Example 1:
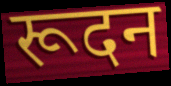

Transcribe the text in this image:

रूदन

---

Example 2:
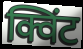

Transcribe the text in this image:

क्विंट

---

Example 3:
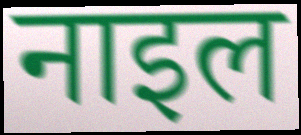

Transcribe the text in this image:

नाइल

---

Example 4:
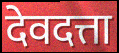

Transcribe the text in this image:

देवदत्ता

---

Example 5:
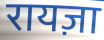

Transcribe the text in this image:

रायज़ा